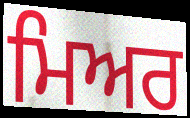
ਮਿਅਰ